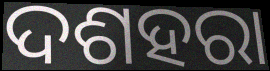
ଦଶହରା